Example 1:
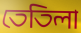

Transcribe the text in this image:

তেতিলা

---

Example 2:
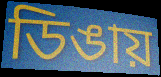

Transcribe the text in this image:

ডিঙায়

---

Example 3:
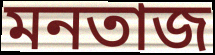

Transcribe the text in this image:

মনতাজ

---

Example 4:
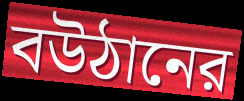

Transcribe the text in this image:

বউঠানের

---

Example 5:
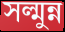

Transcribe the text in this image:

সল্মুন্ন